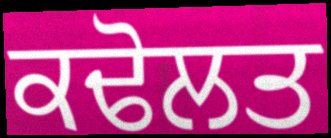
ਕਢੋਲਤ